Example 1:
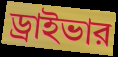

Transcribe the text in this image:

ড্রাইভার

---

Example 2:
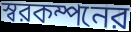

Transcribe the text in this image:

স্বরকম্পনের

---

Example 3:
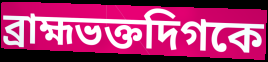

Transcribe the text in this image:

ব্রাহ্মভক্তদিগকে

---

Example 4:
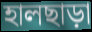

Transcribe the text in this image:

হালছাড়া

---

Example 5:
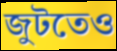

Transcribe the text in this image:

জুটতেও